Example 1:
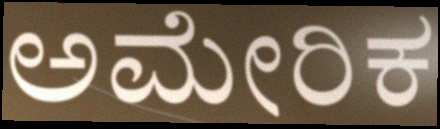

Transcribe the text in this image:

ಅಮೇರಿಕ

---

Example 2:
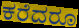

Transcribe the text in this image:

ಕರೆದರೂ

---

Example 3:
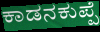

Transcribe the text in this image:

ಕಾಡನಕುಪ್ಪೆ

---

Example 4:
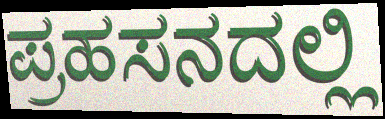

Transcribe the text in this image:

ಪ್ರಹಸನದಲ್ಲಿ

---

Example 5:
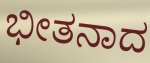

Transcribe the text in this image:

ಭೀತನಾದ